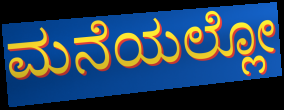
ಮನೆಯಲ್ಲೋ